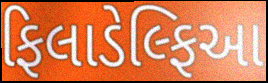
ફિલાડેલ્ફિઆ